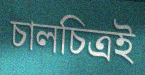
চালচিত্রই